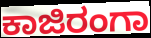
ಕಾಜಿರಂಗಾ